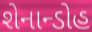
શેનાન્ડોહ